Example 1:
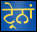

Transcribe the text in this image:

ਟ੍ਰੇਨਾਂ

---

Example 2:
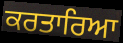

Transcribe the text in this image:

ਕਰਤਾਰਿਆ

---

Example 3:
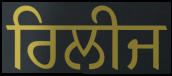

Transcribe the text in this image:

ਰਿਲੀਜ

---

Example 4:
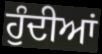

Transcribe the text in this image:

ਹੁੰਦੀਆਂ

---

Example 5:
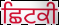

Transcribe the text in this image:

ਛਿਟਕੀ